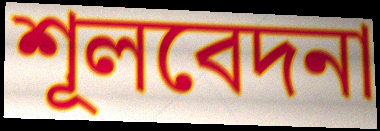
শূলবেদনা